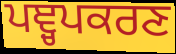
ਪਞ੍ਚਪਕਰਣ